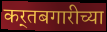
कर्तबगारीच्या